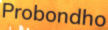
Probondho